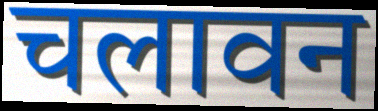
चलावन